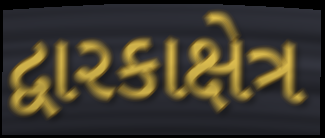
દ્વારકાક્ષેત્ર